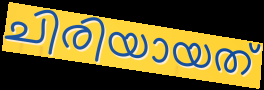
ചിരിയായത്